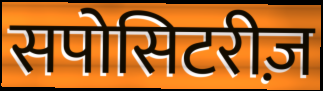
सपोसिटरीज़